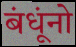
बंधूंनो